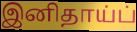
இனிதாய்ப்